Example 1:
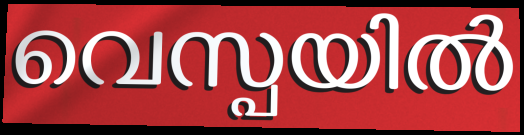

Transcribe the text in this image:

വെസ്പയിൽ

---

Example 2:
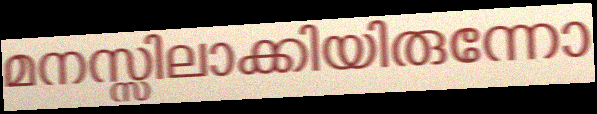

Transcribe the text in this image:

മനസ്സിലാക്കിയിരുന്നോ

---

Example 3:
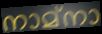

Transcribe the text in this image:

നാമ്നാ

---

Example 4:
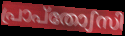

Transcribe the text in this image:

പ്രാപ്തോഽസി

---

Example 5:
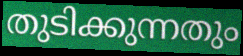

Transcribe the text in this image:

തുടിക്കുന്നതും